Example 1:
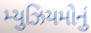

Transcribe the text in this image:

મ્યુઝિયમોનું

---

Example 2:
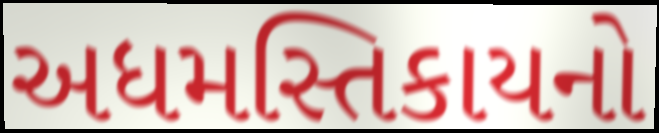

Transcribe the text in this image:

અધમસ્તિકાયનો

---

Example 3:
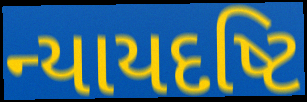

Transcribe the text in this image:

ન્યાયદષ્ટિ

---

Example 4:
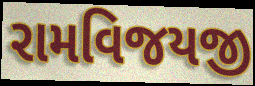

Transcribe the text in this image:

રામવિજયજી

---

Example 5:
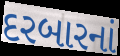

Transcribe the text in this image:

દરબારનાં